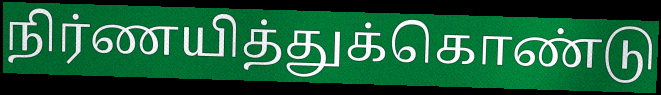
நிர்ணயித்துக்கொண்டு